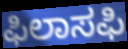
ಫಿಲಾಸಫಿ